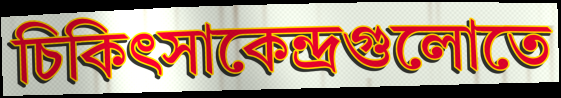
চিকিৎসাকেন্দ্রগুলোতে